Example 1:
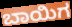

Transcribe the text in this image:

ಬಾಯಿಗ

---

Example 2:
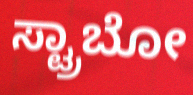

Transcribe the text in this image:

ಸ್ಟ್ರಾಬೋ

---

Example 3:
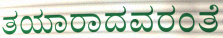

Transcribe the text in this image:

ತಯಾರಾದವರಂತೆ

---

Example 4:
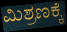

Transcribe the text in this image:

ಮಿಶ್ರಣಕ್ಕೆ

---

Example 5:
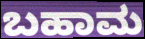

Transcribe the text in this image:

ಬಹಾಮ